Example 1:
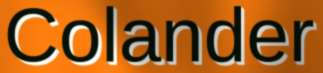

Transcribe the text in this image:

Colander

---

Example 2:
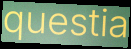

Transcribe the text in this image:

questia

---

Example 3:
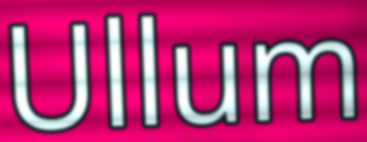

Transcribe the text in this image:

Ullum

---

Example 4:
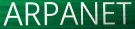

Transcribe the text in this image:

ARPANET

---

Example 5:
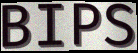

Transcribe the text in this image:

BIPS